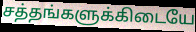
சத்தங்களுக்கிடையே